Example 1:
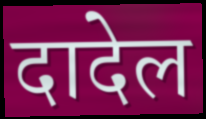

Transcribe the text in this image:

दादेल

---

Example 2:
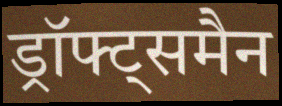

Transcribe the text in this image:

ड्रॉफ्ट्समैन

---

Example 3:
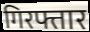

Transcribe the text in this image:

गिरफ्तार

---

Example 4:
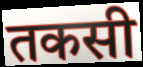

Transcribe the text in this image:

तकसी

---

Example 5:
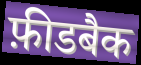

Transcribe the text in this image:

फ़ीडबैक